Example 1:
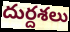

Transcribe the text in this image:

దుర్దశలు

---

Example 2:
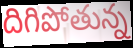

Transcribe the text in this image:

దిగిపోతున్న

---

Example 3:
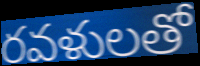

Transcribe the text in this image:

రవళులతో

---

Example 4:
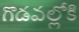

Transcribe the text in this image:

గొడవల్లోకి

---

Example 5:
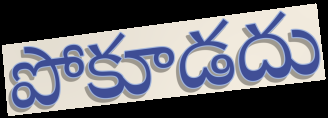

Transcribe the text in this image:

పోకూడదు